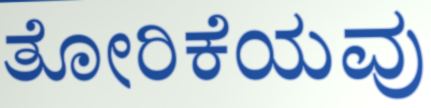
ತೋರಿಕೆಯವು